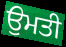
ਉਮਤੀ